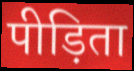
पीड़िता